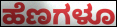
ಹೆಣಗಳೂ